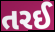
તરઈ